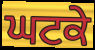
ਘਟਕੇ